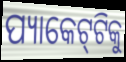
ପ୍ୟାକେଟ୍‌ଟିକୁ